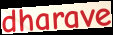
dharave